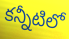
కన్నీటిలో